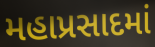
મહાપ્રસાદમાં